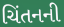
ચિંતનની